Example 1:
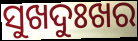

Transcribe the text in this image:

ସୁଖଦୁଃଖର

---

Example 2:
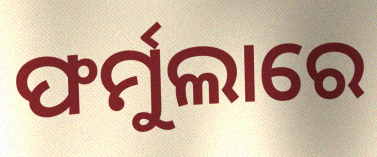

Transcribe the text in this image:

ଫର୍ମୁଲାରେ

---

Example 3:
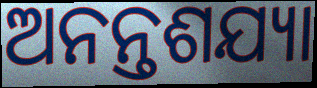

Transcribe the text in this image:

ଅନନ୍ତଶଯ୍ୟା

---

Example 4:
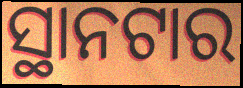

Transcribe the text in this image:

ସ୍ଥାନଟାର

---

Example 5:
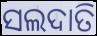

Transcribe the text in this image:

ସଲଦାତି